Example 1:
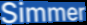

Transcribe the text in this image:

Simmer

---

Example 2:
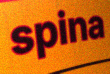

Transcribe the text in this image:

spina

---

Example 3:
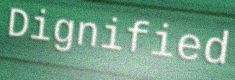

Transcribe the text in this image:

Dignified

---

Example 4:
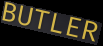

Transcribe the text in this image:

BUTLER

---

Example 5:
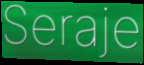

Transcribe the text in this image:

Seraje